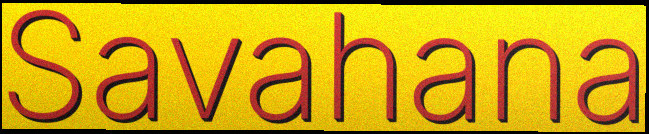
Savahana